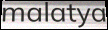
malatya